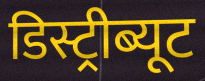
डिस्ट्रीब्यूट